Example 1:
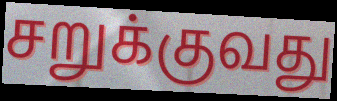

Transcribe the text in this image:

சறுக்குவது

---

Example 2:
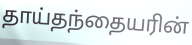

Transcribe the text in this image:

தாய்தந்தையரின்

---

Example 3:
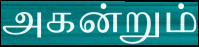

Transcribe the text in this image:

அகன்றும்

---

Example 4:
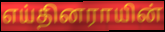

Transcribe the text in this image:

எய்தினராயின்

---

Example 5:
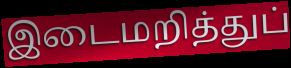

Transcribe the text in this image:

இடைமறித்துப்